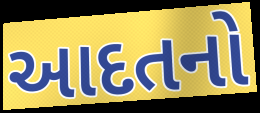
આદતનો